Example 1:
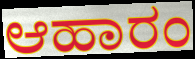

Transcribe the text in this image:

ಆಹಾರಂ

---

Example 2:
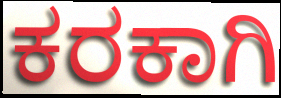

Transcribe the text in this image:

ಕರಕಾಗಿ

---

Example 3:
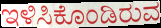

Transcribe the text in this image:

ಇಳಿಸಿಕೊಂಡಿರುವ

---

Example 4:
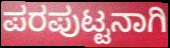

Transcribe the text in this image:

ಪರಪುಟ್ಟನಾಗಿ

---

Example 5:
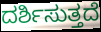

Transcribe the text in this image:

ದರ್ಶಿಸುತ್ತದೆ